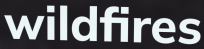
wildfires